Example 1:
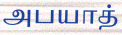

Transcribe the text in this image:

அபயாத்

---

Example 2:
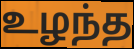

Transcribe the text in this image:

உழந்த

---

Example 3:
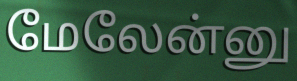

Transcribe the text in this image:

மேலேன்னு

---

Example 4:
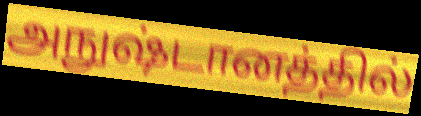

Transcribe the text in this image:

அநுஷ்டானத்தில்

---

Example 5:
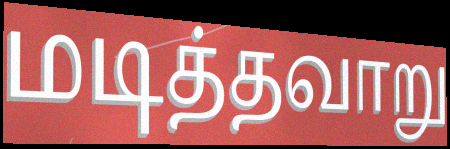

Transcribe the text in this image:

மடித்தவாறு